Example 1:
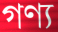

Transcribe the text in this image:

গণ্য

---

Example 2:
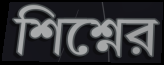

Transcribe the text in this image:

শিশ্নের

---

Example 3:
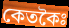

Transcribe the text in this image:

কেতকৈঃ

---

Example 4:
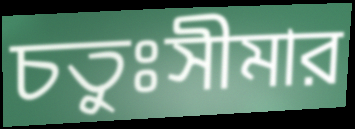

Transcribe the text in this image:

চতুঃসীমার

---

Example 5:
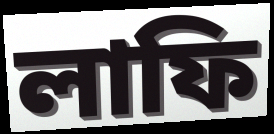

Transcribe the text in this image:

লাফি